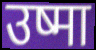
उष्मा